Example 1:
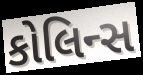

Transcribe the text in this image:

કોલિન્સ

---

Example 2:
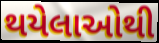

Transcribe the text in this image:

થયેલાઓથી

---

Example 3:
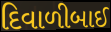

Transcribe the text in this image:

દિવાળીબાઈ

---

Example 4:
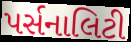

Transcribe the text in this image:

પર્સનાલિટી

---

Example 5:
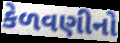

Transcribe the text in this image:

કેળવણીનો